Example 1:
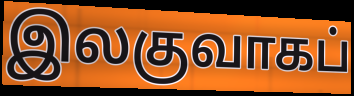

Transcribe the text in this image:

இலகுவாகப்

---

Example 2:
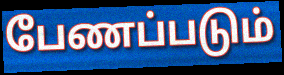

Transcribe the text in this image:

பேணப்படும்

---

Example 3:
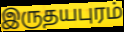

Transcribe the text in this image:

இருதயபுரம்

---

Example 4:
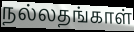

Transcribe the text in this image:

நல்லதங்காள்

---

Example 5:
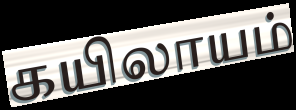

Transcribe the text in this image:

கயிலாயம்